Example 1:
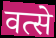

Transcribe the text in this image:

वत्से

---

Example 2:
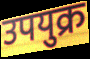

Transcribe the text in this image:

उपयुक्र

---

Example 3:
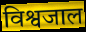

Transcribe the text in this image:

विश्वजाल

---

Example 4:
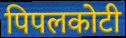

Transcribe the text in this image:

पिपलकोटी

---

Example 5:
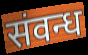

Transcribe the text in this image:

संवन्ध